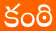
కంఠి